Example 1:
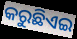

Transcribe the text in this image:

କରୁଛିଏଇ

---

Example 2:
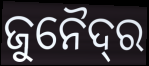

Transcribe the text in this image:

ଜୁନୈଦ୍‌ର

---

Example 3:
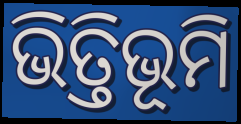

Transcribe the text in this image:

ଭିତ୍ତିଭୂମି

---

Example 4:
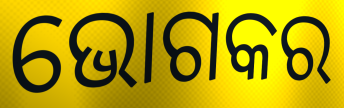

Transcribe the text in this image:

ଭୋଗକର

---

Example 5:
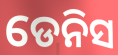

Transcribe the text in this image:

ଡେନିସ